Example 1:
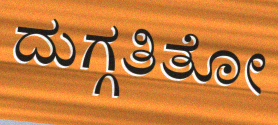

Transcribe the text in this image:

ದುಗ್ಗತಿತೋ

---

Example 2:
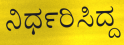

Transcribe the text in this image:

ನಿರ್ಧರಿಸಿದ್ದ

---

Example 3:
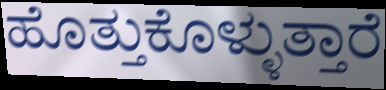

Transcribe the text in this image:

ಹೊತ್ತುಕೊಳ್ಳುತ್ತಾರೆ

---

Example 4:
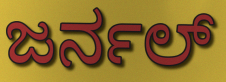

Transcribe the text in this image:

ಜರ್ನಲ್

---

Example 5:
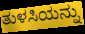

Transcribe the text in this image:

ತುಳಸಿಯನ್ನು